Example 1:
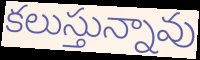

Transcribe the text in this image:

కలుస్తున్నావు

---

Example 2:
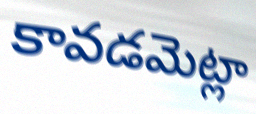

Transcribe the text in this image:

కావడమెట్లా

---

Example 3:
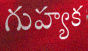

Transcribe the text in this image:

గుహ్యక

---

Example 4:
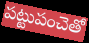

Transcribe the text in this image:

పట్టుపంచెతో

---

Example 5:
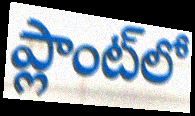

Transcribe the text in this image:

ప్లాంట్‌లో